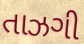
તાઝગી